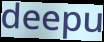
deepu